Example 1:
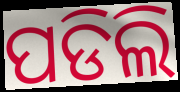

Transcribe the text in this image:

ପଡିଲି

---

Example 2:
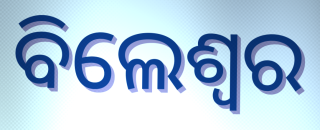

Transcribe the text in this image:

ବିଲେଶ୍ଵର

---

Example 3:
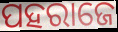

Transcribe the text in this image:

ପହରାଜେ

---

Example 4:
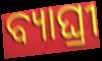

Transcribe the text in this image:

ବ୍ୟାଘ୍ରୀ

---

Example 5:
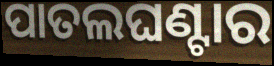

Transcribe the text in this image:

ପାତଲଘଣ୍ଟାର